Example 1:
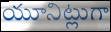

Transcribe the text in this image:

యూనిట్లుగా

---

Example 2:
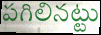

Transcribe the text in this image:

పగిలినట్టు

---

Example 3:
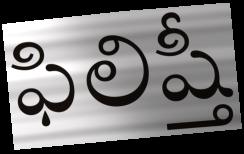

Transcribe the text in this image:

ఫిలిష్తీ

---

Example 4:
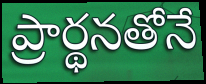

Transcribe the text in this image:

ప్రార్థనతోనే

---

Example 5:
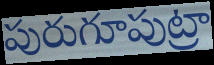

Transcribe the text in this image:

పురుగూపుట్రా